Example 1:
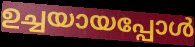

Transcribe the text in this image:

ഉച്ചയായപ്പോൾ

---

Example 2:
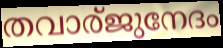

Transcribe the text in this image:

തവാര്ജുനേദം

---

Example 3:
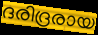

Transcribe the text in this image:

ദരിദ്രരായ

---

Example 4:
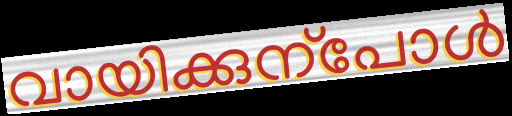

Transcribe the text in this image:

വായിക്കുന്പോൾ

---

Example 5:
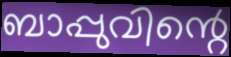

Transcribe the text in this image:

ബാപ്പുവിന്റെ